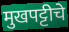
मुखपट्टीचे